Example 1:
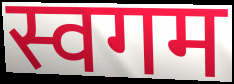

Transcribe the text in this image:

स्वगम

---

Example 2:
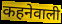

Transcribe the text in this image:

कहनेवाली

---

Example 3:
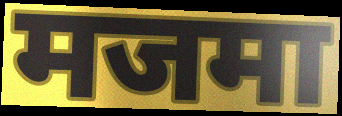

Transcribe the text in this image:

मजमा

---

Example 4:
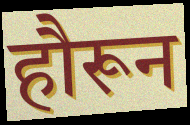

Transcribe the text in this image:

हौरून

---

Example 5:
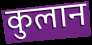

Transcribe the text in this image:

कुलान